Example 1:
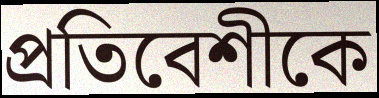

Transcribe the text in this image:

প্রতিবেশীকে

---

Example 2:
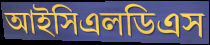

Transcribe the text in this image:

আইসিএলডিএস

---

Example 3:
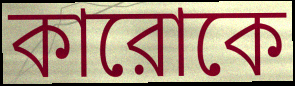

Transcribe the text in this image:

কারোকে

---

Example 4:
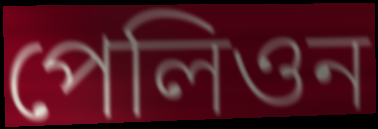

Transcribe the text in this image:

পেলিওন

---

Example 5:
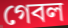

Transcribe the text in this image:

গেবল